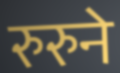
रुरुने